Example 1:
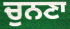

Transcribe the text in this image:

ਚੁਨਣਾ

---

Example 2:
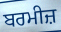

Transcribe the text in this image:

ਬਰਮੀਜ਼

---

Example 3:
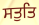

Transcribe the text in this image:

ਸਤੁਤਿ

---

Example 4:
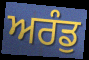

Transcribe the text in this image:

ਅਰੰਡੁ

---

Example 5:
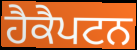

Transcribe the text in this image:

ਹੈਕੈਪਟਨ